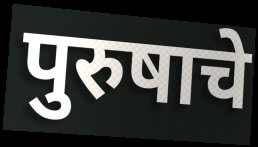
पुरुषाचे